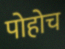
पोहोच